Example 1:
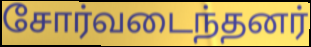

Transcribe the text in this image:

சோர்வடைந்தனர்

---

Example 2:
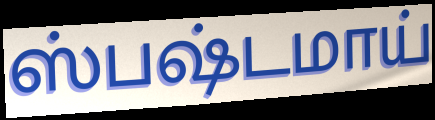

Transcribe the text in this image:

ஸ்பஷ்டமாய்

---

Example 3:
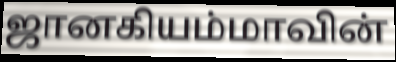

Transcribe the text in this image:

ஜானகியம்மாவின்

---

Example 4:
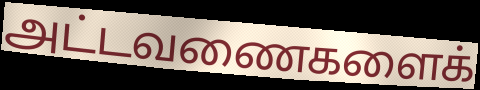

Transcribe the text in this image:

அட்டவணைகளைக்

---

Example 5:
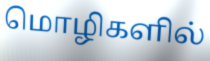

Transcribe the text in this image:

மொழிகளில்